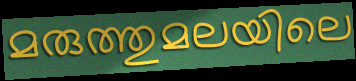
മരുത്തുമലയിലെ